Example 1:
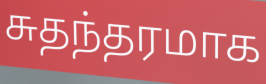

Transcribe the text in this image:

சுதந்தரமாக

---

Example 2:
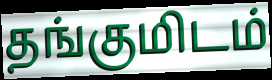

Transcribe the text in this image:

தங்குமிடம்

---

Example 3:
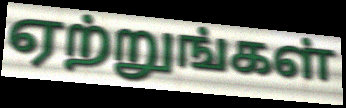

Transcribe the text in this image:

ஏற்றுங்கள்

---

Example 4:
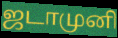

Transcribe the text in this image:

ஜடாமுனி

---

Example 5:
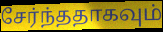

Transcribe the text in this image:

சேர்ந்ததாகவும்